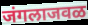
जंगलाजवळ